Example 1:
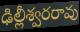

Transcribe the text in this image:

ఢిల్లీశ్వరరావు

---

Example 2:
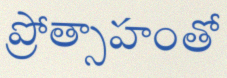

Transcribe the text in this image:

ప్రోత్సాహంతో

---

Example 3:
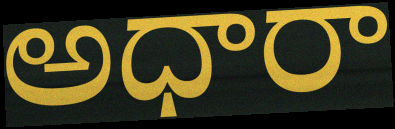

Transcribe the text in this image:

అధారా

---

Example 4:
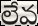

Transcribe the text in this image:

లేవ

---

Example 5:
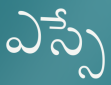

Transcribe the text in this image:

ఎస్సే